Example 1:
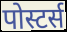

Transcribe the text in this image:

पोस्टर्स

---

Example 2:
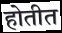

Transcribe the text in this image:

होतीत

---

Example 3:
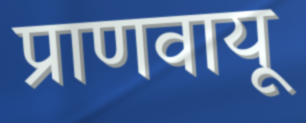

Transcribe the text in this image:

प्राणवायू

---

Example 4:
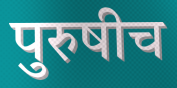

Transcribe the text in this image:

पुरुषीच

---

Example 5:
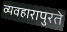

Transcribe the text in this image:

व्यवहारापुरते